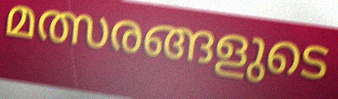
മത്സരങ്ങളുടെ